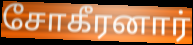
சோகீரனார்